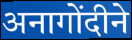
अनागोंदीने